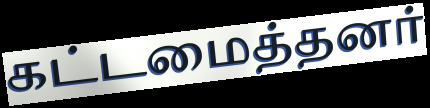
கட்டமைத்தனர்